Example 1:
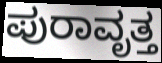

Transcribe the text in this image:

ಪುರಾವೃತ್ತ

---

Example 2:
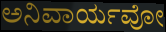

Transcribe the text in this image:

ಅನಿವಾರ್ಯವೋ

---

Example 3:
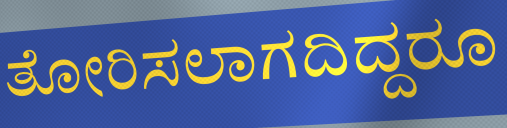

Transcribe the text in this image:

ತೋರಿಸಲಾಗದಿದ್ದರೂ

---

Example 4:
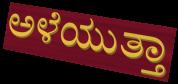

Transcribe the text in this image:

ಅಳೆಯುತ್ತಾ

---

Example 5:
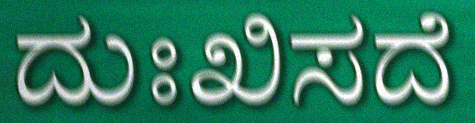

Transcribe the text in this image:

ದುಃಖಿಸದೆ